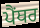
ਪੈੰਥਰ